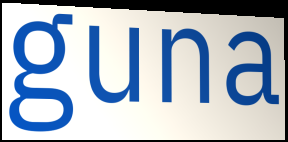
guna